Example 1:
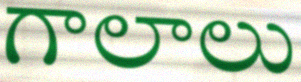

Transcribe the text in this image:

గాలాలు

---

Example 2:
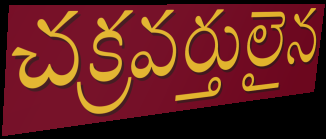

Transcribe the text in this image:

చక్రవర్తులైన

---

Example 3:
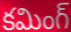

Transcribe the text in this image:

కమింగ్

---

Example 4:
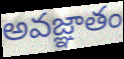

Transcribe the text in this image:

అవజ్ఞాతం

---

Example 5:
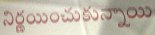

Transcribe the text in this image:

నిర్ణయించుకున్నాయి